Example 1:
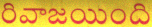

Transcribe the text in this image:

రివాజయింది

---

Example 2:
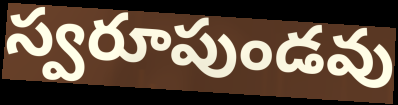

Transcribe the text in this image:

స్వరూపుండవు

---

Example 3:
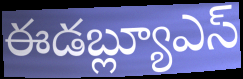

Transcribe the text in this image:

ఈడబ్ల్యూఎస్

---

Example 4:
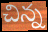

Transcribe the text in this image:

చిన్న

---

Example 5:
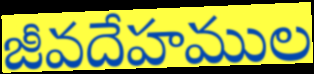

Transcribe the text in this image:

జీవదేహముల